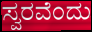
ಸ್ವರವೆಂದು